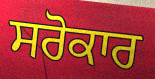
ਸਰੋਕਾਰ